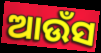
ଆଉଁସ